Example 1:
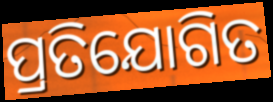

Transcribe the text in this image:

ପ୍ରତିଯୋଗିତ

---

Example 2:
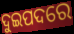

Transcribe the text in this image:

ଦୁଇପଦରେ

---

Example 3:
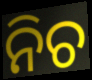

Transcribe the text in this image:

ନିଚ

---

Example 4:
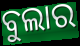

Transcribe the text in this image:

ବୁଲାର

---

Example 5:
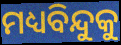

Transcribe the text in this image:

ମଧ୍ୟବିନ୍ଦୁକୁ